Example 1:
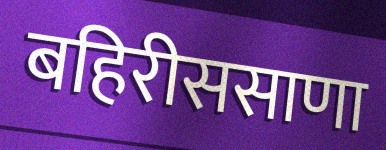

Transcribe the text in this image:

बहिरीससाणा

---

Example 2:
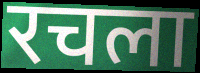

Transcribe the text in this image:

रचला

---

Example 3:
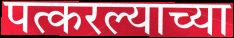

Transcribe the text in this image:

पत्करल्याच्या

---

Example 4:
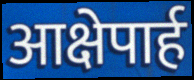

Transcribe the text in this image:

आक्षेपार्ह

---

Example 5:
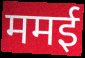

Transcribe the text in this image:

ममई